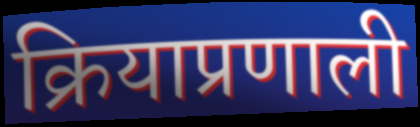
क्रियाप्रणाली